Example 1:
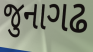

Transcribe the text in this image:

જુનાગઢ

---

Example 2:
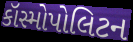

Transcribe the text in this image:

કૉસ્મોપોલિટન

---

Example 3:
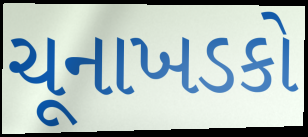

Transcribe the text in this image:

ચૂનાખડકો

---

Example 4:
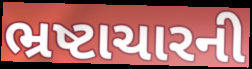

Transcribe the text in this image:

ભ્રષ્ટાચારની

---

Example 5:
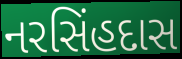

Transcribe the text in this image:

નરસિંહદાસ